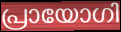
പ്രായോഗി